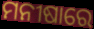
ମନୀଷାରେ